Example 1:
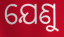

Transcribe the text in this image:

ଯେଣୁ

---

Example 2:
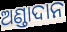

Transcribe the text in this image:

ଅଣ୍ଡାଦାନ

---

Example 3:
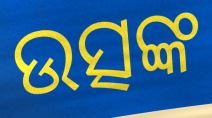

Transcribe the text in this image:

ଉତ୍ସଙ୍କ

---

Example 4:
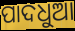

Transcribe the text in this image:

ପାଦଧୁଆ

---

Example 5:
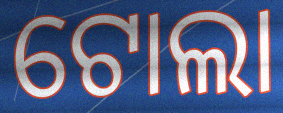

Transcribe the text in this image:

ଟୋଲା